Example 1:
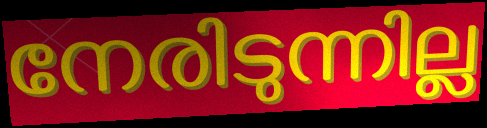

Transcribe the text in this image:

നേരിടുന്നില്ല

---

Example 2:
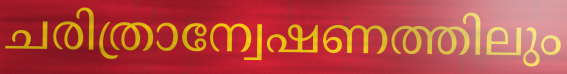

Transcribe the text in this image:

ചരിത്രാന്വേഷണത്തിലും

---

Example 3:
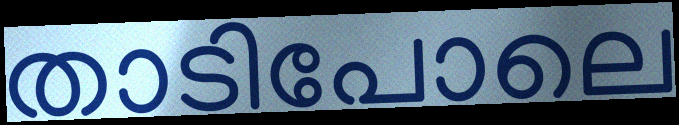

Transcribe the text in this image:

താടിപോലെ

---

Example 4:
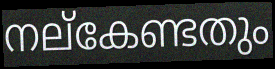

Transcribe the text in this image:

നല്കേണ്ടതും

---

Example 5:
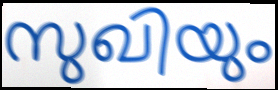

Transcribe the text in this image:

സുഖിയും